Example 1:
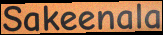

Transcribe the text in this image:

Sakeenala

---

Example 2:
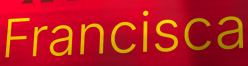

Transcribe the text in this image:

Francisca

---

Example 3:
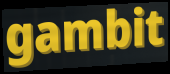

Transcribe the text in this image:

gambit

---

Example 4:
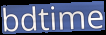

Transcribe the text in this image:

bdtime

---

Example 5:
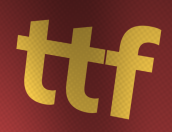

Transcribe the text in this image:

ttf